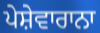
ਪੇਸ਼ੇਵਾਰਾਨਾ